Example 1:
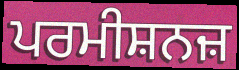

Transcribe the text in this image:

ਪਰਮੀਸ਼ਨਜ਼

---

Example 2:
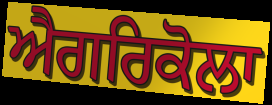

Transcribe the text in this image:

ਐਗਰਿਕੋਲਾ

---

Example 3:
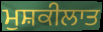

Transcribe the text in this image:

ਮੁਸ਼ਕੀਲਾਤ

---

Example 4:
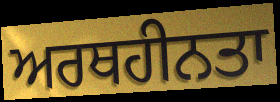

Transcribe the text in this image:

ਅਰਥਹੀਨਤਾ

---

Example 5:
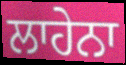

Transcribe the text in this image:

ਲਾਹੇਨਾ